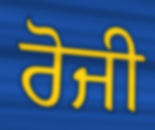
ਰੋਜੀ